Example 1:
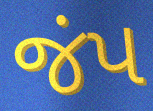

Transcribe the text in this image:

જંપ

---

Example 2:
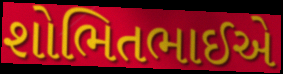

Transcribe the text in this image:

શોભિતભાઈએ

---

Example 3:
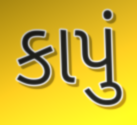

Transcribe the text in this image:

કાપું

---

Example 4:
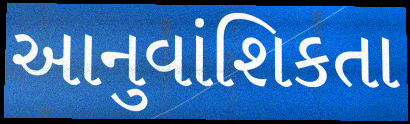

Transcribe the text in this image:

આનુવાંશિકતા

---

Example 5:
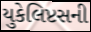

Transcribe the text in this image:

યુકેલિપ્ટસની